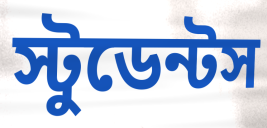
স্টুডেন্টস